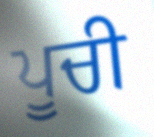
ਪੂਚੀ